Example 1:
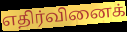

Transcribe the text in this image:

எதிர்வினைக்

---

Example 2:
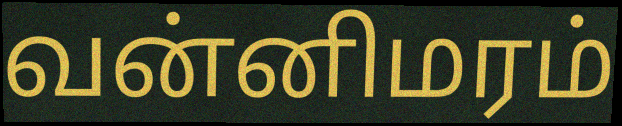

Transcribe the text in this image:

வன்னிமரம்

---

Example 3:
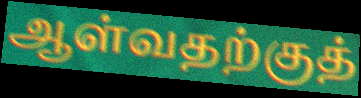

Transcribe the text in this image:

ஆள்வதற்குத்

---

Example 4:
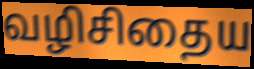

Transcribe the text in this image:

வழிசிதைய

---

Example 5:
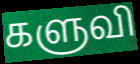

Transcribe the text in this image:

களுவி